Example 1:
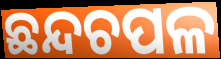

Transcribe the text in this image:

ଛନ୍ଦଚପଳ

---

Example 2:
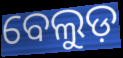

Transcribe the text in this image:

ବେଲୁଡ଼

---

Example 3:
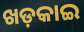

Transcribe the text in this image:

ଖଡ଼କାଇ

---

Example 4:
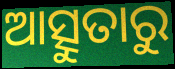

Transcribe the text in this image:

ଆତ୍ସୁତାରୁ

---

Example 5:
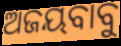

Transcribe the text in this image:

ଅଜୟବାବୁ